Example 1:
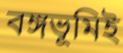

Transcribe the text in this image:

বঙ্গভূমিই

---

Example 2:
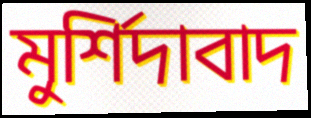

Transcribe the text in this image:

মুর্শিদাবাদ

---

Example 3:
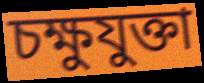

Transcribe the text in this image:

চক্ষুযুক্তা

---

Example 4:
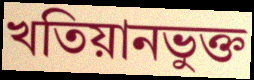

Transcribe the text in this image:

খতিয়ানভুক্ত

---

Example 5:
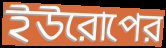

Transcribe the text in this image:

ইউরোপের